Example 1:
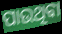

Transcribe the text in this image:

ପାଉଥିବା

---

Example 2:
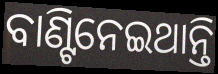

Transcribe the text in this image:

ବାଣ୍ଟିନେଇଥାନ୍ତି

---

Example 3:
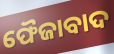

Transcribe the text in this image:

ଫୈଜାବାଦ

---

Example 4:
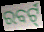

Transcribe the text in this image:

ରବର୍ଟ୍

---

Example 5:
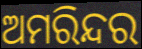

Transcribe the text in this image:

ଅମରିନ୍ଦର